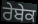
ਰੇਬੇਕ